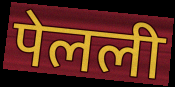
पेलली